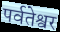
पर्वतेश्वर